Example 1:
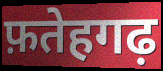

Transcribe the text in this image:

फ़तेहगढ़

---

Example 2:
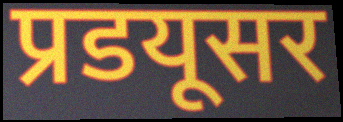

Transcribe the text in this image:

प्रडयूसर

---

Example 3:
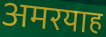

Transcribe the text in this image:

अमरयाह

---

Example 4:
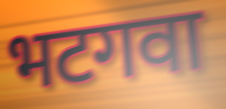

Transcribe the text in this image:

भटगवा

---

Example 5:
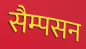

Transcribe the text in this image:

सैम्पसन